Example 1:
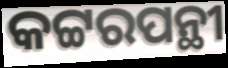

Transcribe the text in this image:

କଟ୍ଟରପନ୍ଥୀ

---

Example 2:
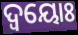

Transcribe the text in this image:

ଦ୍ବୟୋଃ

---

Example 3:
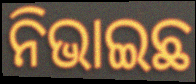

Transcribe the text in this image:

ନିଭାଇଛ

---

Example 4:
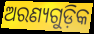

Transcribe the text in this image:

ଅରଣ୍ୟଗୁଡ଼ିକ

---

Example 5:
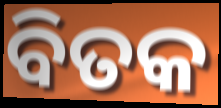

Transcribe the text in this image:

ବିତକ